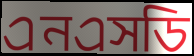
এনএসডি